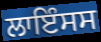
ਲਾਇੰਸਸ